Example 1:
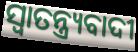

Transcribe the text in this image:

ସ୍ୱାତନ୍ତ୍ର୍ୟବାଦୀ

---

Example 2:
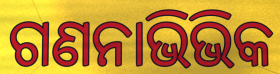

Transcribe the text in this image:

ଗଣନାଭିଭିକ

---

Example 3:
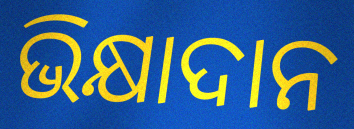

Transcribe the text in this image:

ଭିକ୍ଷାଦାନ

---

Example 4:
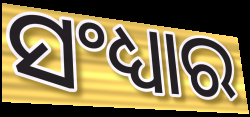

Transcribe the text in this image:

ସଂଧ୍ୟାର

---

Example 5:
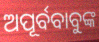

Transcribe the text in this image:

ଅପୂର୍ବବାବୁଙ୍କ